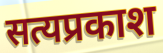
सत्यप्रकाश